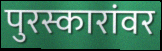
पुरस्कारांवर